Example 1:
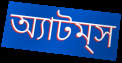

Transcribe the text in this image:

অ্যাটম্‌স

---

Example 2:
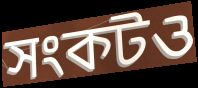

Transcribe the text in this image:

সংকটও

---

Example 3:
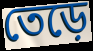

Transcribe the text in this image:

তেড়ে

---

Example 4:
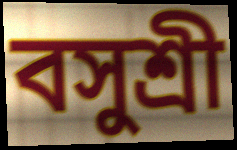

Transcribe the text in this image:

বসুশ্রী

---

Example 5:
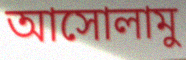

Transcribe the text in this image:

আসোলামু